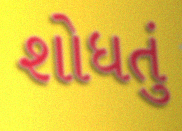
શોધતું